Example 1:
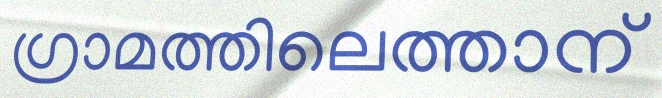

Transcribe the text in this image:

ഗ്രാമത്തിലെത്താന്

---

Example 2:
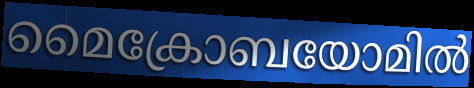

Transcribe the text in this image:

മൈക്രോബയോമിൽ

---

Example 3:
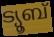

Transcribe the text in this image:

ട്യൂബ്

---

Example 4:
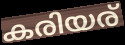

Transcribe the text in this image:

കരിയര്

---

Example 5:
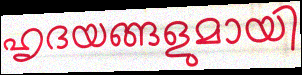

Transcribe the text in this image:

ഹൃദയങ്ങളുമായി